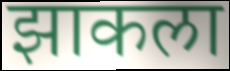
झाकला